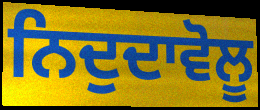
ਨਿਦੁਦਾਵੋਲੂ